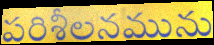
పరిశీలనమును